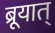
ब्रूयात्